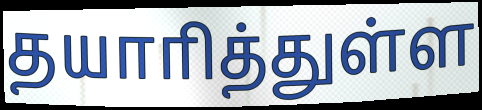
தயாரித்துள்ள